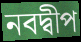
নবদ্বীপ